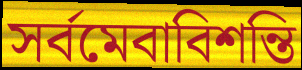
সর্বমেবাবিশন্তি